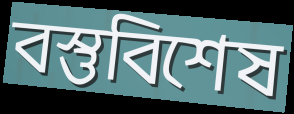
বস্তুবিশেষ